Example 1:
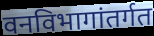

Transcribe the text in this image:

वनविभागांतर्गत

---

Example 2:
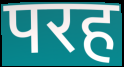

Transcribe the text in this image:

परह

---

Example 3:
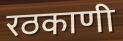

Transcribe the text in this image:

रठकाणी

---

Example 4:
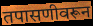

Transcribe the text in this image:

तपासणीवरून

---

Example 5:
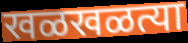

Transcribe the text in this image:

खळखळत्या